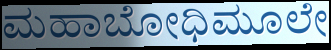
ಮಹಾಬೋಧಿಮೂಲೇ